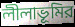
লীলাভূমির